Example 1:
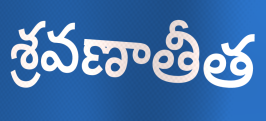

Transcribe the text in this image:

శ్రవణాతీత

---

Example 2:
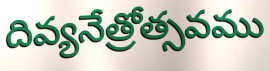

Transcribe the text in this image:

దివ్యనేత్రోత్సవము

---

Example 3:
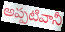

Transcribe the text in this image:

అప్పటివానీ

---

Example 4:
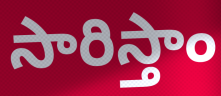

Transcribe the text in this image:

సారిస్తాం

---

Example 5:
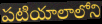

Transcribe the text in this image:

పటియాలాలోని